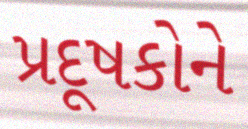
પ્રદૂષકોને